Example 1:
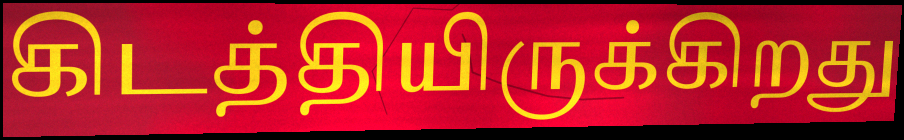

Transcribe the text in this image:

கிடத்தியிருக்கிறது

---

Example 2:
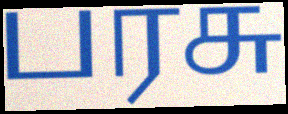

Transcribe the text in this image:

பரசு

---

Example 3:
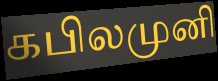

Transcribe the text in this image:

கபிலமுனி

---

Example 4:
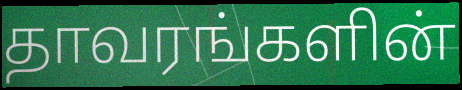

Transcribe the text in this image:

தாவரங்களின்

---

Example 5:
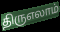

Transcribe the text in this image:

திருஎலாம்